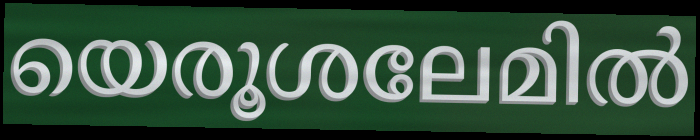
യെരൂശലേമിൽ